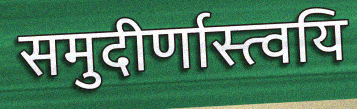
समुदीर्णास्त्वयि